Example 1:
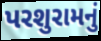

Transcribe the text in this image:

પરશુરામનું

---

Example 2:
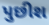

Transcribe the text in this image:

પુછીશ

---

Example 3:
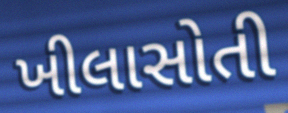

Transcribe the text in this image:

ખીલાસોતી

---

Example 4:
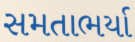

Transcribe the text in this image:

સમતાભર્યા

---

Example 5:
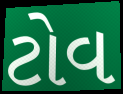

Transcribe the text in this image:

ટોવ